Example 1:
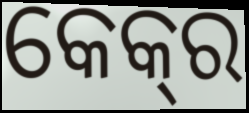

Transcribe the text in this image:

କେକ୍‌ର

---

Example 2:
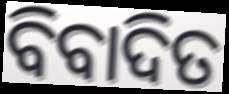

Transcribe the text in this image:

ବିବାଦିତ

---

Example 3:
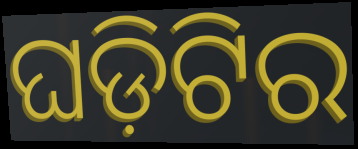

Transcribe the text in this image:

ଘଡ଼ିଟିର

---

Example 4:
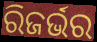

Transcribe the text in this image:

ରିଜର୍ଭର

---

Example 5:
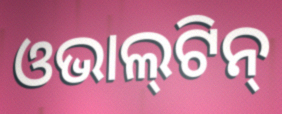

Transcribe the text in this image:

ଓଭାଲ୍‍ଟିନ୍